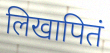
लिखापितं